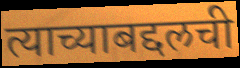
त्याच्याबद्दलची